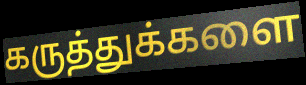
கருத்துக்களை